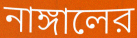
নাঙ্গালের